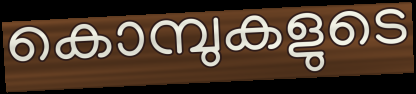
കൊമ്പുകളുടെ